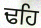
ਢਹਿ